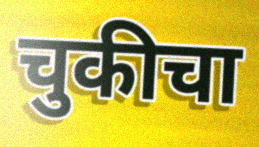
चुकीचा